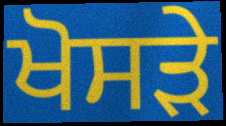
ਖੋਸੜੇ